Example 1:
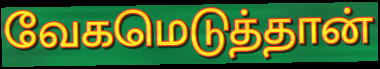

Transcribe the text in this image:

வேகமெடுத்தான்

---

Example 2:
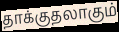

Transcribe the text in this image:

தாக்குதலாகும்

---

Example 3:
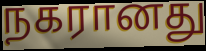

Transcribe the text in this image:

நகரானது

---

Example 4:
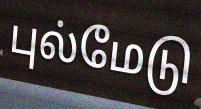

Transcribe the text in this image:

புல்மேடு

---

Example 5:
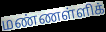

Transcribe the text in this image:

மண்ணள்ளிக்